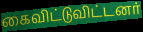
கைவிட்டுவிட்டனர்